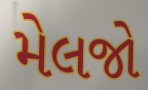
મેલજો